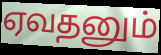
ஏவதனும்